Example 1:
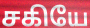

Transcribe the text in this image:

சகியே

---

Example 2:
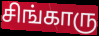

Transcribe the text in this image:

சிங்காரு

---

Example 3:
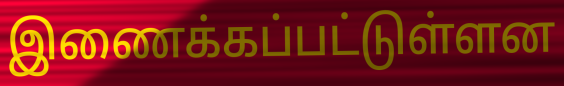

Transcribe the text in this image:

இணைக்கப்பட்டுள்ளன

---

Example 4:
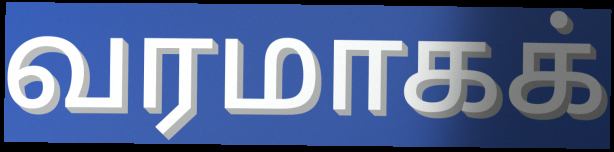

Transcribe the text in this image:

வரமாகக்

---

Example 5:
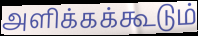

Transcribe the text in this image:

அளிக்கக்கூடும்